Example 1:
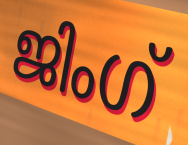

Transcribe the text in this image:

ജിംഗ്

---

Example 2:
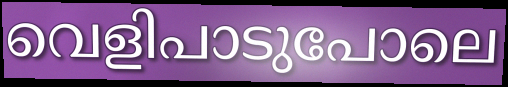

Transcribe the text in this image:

വെളിപാടുപോലെ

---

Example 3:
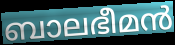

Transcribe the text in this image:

ബാലഭീമൻ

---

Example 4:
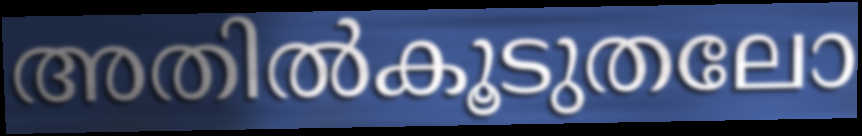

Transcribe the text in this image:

അതിൽകൂടുതലോ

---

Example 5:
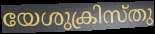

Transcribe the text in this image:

യേശുക്രിസ്തു